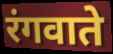
रंगवाते